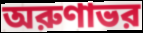
অরুণাভর